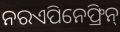
ନରଏପିନେଫ୍ରିନ୍